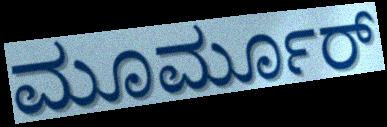
ಮೂರ್ಮೂರ್